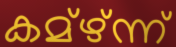
കമ്ഴ്ന്ന്